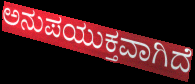
ಅನುಪಯುಕ್ತವಾಗಿದೆ